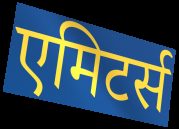
एमिटर्स